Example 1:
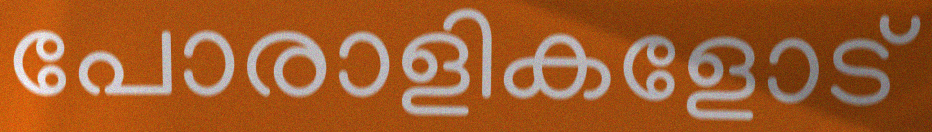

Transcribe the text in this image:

പോരാളികളോട്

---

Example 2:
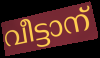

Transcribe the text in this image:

വീട്ടാന്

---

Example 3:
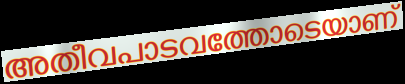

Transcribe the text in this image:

അതീവപാടവത്തോടെയാണ്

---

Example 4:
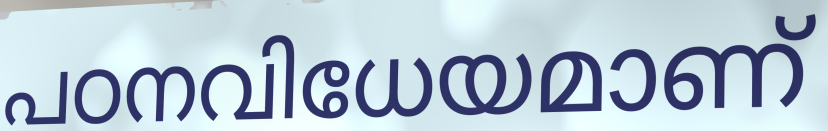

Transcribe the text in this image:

പഠനവിധേയമാണ്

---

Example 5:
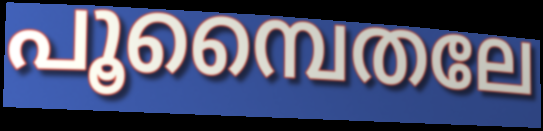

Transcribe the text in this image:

പൂമ്പൈതലേ